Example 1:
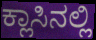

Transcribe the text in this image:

ಕ್ಲಾಸಿನಲ್ಲಿ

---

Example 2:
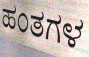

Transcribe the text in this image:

ಹಂತಗಳ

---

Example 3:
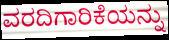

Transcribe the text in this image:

ವರದಿಗಾರಿಕೆಯನ್ನು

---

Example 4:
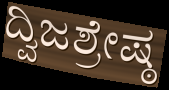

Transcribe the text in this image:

ದ್ವಿಜಶ್ರೇಷ್ಠ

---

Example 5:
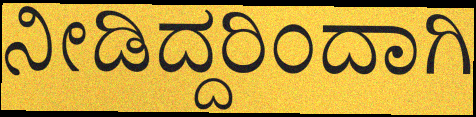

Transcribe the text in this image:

ನೀಡಿದ್ದರಿಂದಾಗಿ